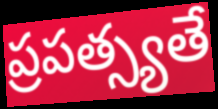
ప్రపత్స్యతే